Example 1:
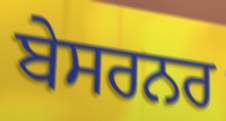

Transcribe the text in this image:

ਬੇਸਰਨਰ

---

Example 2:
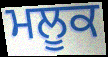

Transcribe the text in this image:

ਮਲੂਕ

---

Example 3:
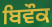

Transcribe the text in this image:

ਬਿਵੌਕ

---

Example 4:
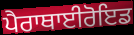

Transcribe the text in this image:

ਪੈਰਾਥਾਈਰੋਇਡ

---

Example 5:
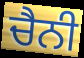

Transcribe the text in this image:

ਚੈਨੀ